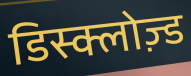
डिस्क्लोज़्ड